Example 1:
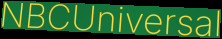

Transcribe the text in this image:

NBCUniversal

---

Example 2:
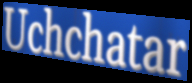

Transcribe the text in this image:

Uchchatar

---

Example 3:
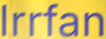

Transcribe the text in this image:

Irrfan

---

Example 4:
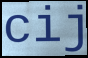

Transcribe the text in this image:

cij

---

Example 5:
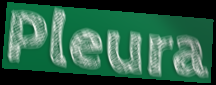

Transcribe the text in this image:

Pleura